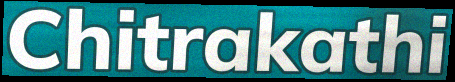
Chitrakathi